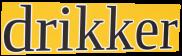
drikker